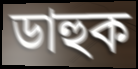
ডাহুক